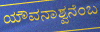
ಯೌವನಾಶ್ವನೆಂಬ